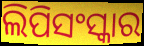
ଲିପିସଂସ୍କାର